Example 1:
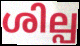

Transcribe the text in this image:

ശില്പ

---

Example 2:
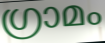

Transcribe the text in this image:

ഗ്രാമം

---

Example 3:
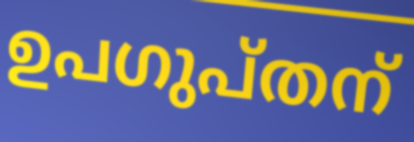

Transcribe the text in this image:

ഉപഗുപ്തന്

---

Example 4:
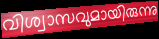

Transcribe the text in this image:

വിശ്വാസവുമായിരുന്നു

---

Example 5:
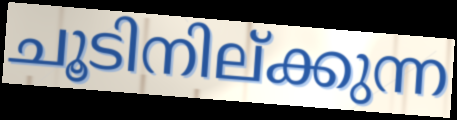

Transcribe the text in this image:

ചൂടിനില്ക്കുന്ന